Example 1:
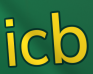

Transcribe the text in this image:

icb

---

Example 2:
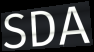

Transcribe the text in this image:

SDA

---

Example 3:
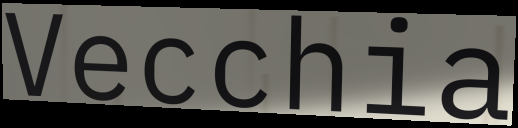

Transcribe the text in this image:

Vecchia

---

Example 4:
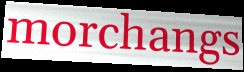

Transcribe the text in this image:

morchangs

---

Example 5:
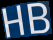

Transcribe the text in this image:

HB